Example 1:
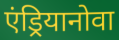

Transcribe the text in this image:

एंड्रियानोवा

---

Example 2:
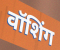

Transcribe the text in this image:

वॉशिंग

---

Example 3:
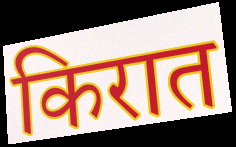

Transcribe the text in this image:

किरात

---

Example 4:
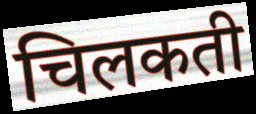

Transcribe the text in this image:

चिलकती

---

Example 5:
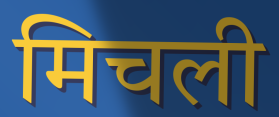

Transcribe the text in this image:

मिचली